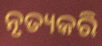
ନୃତ୍ୟକରି